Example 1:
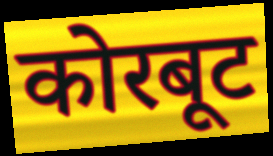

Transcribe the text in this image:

कोरबूट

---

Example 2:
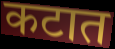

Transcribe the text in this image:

कटात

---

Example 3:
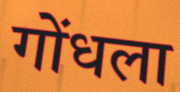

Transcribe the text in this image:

गोंधला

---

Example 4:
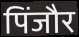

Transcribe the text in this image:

पिंजौर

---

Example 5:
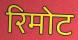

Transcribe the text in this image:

रिमोट